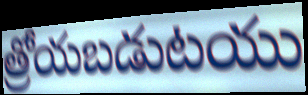
త్రోయబడుటయు